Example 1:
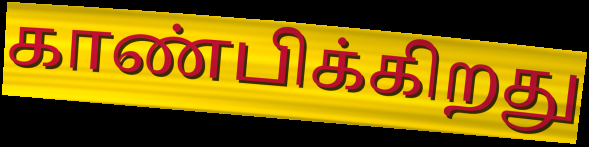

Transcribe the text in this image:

காண்பிக்கிறது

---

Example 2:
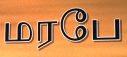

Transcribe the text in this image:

மரபே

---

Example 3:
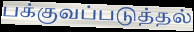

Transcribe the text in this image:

பக்குவப்படுத்தல்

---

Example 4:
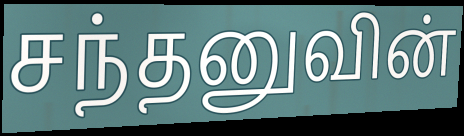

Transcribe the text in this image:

சந்தனுவின்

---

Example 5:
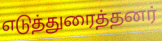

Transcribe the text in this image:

எடுத்துரைத்தனர்